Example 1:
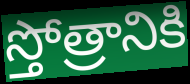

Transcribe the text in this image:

స్తోత్రానికి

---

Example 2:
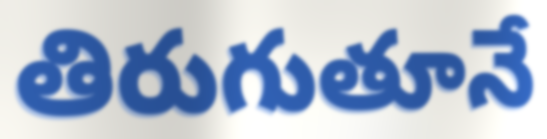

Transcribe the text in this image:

తిరుగుతూనే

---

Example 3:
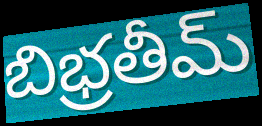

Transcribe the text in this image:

బిభ్రతీమ్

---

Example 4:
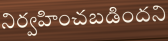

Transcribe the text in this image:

నిర్వహించబడిందని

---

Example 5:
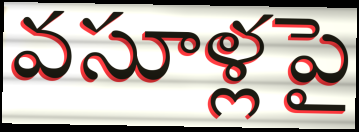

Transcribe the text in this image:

వసూళ్లపై